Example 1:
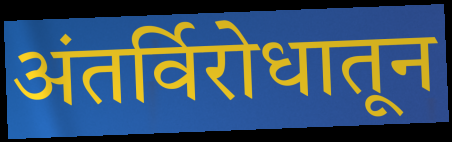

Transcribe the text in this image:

अंतर्विरोधातून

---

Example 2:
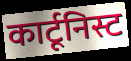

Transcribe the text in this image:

कार्टूनिस्ट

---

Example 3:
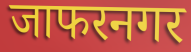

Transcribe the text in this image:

जाफरनगर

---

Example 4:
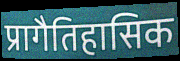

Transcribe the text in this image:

प्रागैतिहासिक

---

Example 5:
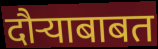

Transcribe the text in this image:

दौऱ्याबाबत